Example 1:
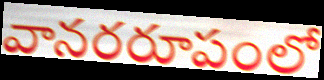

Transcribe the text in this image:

వానరరూపంలో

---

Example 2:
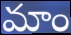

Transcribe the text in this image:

మాం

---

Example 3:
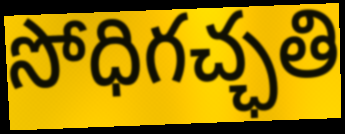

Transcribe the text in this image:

సోధిగచ్ఛతి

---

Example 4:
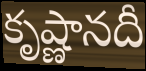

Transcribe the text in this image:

కృష్ణానదీ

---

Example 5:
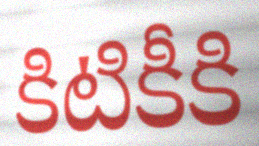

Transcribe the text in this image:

కిటికీకి